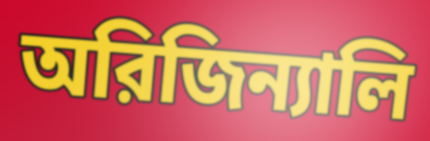
অরিজিন্যালি